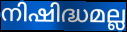
നിഷിദ്ധമല്ല